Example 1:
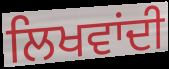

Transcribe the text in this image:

ਲਿਖਵਾਂਦੀ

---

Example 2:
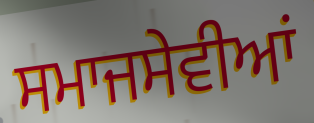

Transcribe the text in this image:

ਸਮਾਜਸੇਵੀਆਂ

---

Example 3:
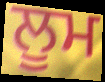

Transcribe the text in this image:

ਲੂਮ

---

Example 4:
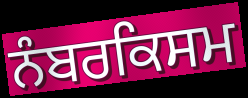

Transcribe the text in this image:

ਨੰਬਰਕਿਸਮ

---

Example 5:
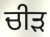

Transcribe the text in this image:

ਚੀੜ